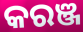
କରଞ୍ଜ